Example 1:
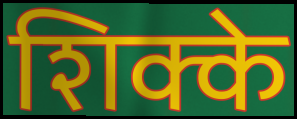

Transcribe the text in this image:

शिक्के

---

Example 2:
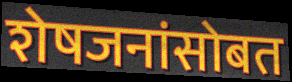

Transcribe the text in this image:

शेषजनांसोबत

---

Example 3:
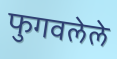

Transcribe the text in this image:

फुगवलेले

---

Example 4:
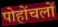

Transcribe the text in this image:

पोहोंचलों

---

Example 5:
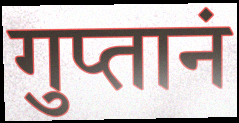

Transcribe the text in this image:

गुप्तानं